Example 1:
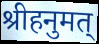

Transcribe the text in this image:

श्रीहनुमत्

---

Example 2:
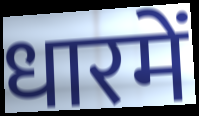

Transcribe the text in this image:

धारमें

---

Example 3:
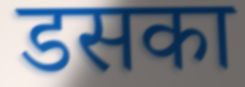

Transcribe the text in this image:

डसका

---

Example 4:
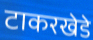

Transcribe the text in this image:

टाकरखेडे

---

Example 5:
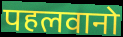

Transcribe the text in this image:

पहलवानो